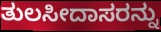
ತುಲಸೀದಾಸರನ್ನು